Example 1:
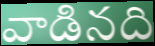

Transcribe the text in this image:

వాడినది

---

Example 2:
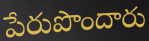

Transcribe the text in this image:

పేరుపొందారు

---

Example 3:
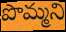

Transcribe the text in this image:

పొమ్మని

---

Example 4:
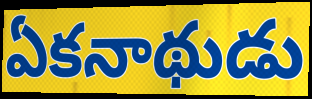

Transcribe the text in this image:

ఏకనాథుడు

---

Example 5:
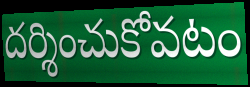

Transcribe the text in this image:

దర్శించుకోవటం